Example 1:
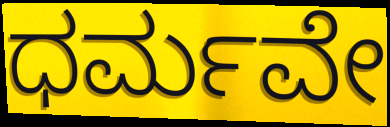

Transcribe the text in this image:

ಧರ್ಮವೇ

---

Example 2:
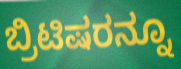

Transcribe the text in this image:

ಬ್ರಿಟಿಷರನ್ನೂ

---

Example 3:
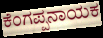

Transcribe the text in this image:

ಕೆಂಗಪ್ಪನಾಯಕ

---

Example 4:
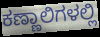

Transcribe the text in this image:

ಕಣ್ಣಾಲಿಗಳಲ್ಲಿ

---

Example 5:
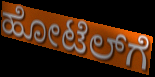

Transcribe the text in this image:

ಹೋಟೆಲ್‌ಗೆ